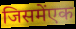
जिसमेंएक